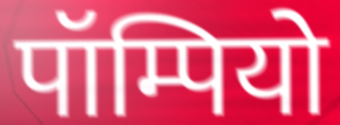
पॉम्पियो